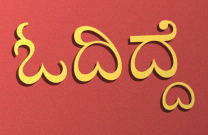
ಓದಿದ್ದೆ